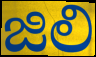
జిలి